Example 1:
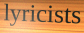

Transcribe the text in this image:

lyricists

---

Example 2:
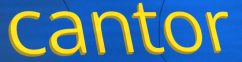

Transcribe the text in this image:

cantor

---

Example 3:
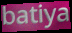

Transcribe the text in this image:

batiya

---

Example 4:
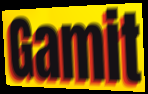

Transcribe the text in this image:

Gamit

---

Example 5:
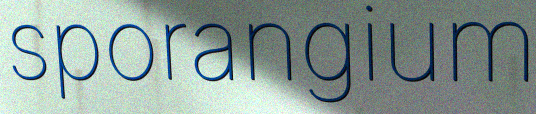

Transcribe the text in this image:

sporangium